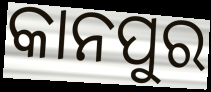
କାନପୁର